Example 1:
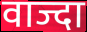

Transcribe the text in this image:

वाज्दा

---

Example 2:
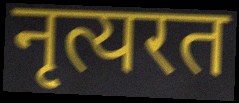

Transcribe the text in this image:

नृत्यरत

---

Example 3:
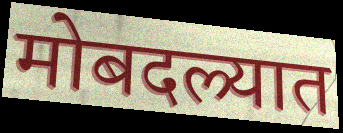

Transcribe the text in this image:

मोबदल्यात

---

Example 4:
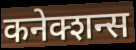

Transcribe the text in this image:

कनेक्शन्स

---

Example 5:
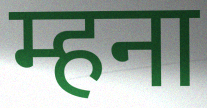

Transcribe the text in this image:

म्हना